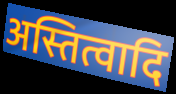
अस्तित्वादि